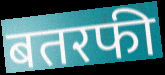
बतरफी